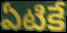
ఏటికే